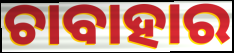
ଚାବାହାର